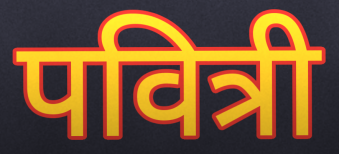
पवित्री